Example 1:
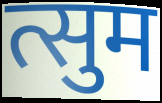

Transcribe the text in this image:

त्सुम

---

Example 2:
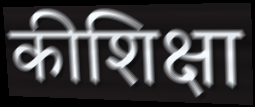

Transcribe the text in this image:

कीशिक्षा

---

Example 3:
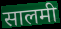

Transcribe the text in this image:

सालमी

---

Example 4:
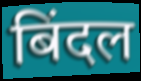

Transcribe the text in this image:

बिंदल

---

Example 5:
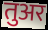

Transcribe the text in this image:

तुअर